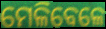
ମେଳିବେଳେ